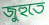
জুহুতে